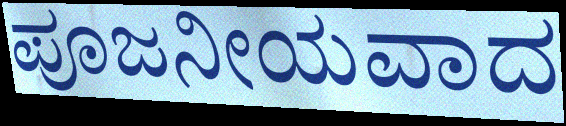
ಪೂಜನೀಯವಾದ